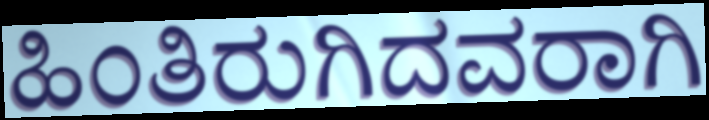
ಹಿಂತಿರುಗಿದವರಾಗಿ